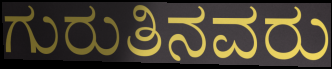
ಗುರುತಿನವರು